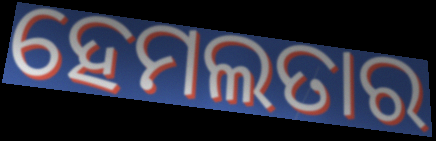
ହେମଲତାର